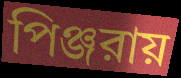
পিঞ্জরায়